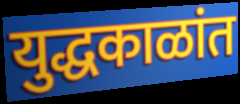
युद्धकाळांत